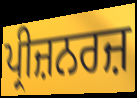
ਪ੍ਰੀਜ਼ਨਰਜ਼